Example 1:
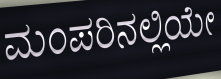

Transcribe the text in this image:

ಮಂಪರಿನಲ್ಲಿಯೇ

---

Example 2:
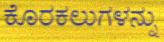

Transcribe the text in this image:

ಕೊರಕಲುಗಳನ್ನು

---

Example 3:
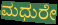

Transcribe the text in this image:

ಮಧುರೇ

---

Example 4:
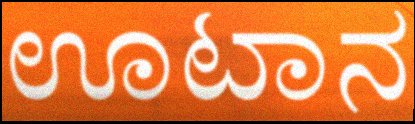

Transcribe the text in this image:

ಊಟಾನ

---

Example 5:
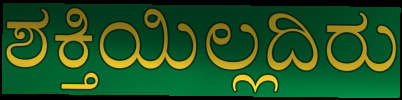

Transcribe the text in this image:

ಶಕ್ತಿಯಿಲ್ಲದಿರು